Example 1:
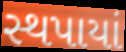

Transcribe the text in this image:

સ્થપાયાં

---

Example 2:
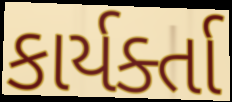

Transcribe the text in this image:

કાર્યર્ક્તા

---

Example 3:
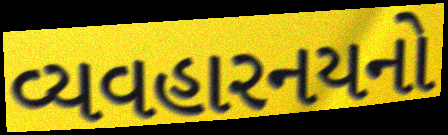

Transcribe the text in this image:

વ્યવહારનયનો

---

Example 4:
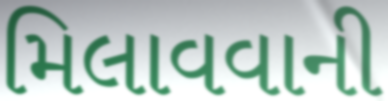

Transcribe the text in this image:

મિલાવવાની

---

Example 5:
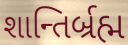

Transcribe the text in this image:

શાન્તિર્બ્રહ્મ